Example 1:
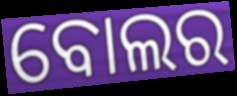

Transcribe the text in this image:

ବୋଲର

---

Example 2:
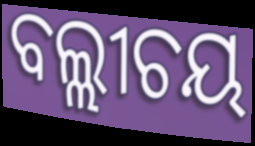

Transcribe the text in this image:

ବଲ୍ଲୀଚୟ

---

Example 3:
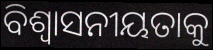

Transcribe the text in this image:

ବିଶ୍ୱାସନୀୟତାକୁ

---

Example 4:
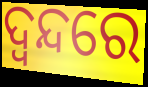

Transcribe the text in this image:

ଦ୍ୱନ୍ଦରେ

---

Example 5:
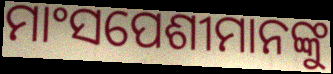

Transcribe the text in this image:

ମାଂସପେଶୀମାନଙ୍କୁ